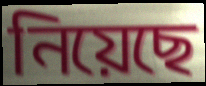
নিয়েছে